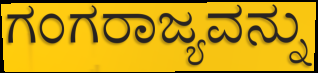
ಗಂಗರಾಜ್ಯವನ್ನು